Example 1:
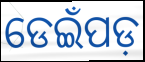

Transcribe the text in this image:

ଡେଇଁପଡ଼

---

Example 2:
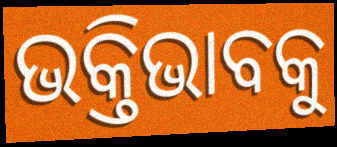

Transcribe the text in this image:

ଭକ୍ତିଭାବକୁ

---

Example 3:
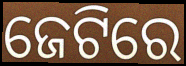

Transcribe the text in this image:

ଜେଟିରେ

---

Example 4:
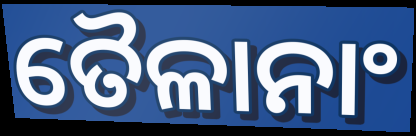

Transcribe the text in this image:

ତୈଳାନାଂ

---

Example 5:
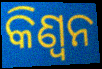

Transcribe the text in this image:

କିଣ୍ୱନ